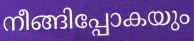
നീങ്ങിപ്പോകയും